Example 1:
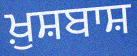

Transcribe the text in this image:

ਖ਼ੁਸ਼ਬਾਸ਼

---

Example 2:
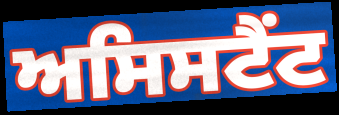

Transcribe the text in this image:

ਅਸਿਸਟੈਂਟ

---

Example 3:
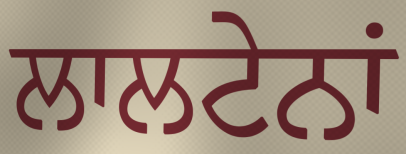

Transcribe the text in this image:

ਲਾਲਟੇਨਾਂ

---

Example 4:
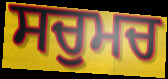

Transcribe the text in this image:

ਸਚੁਮਚ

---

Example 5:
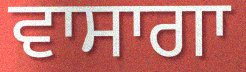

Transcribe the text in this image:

ਵਾਸਾਗਾ